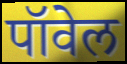
पॉवेल